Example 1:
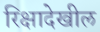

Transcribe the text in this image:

रिक्षादेखील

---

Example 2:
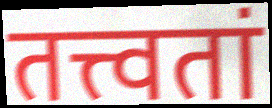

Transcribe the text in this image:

तत्त्वतां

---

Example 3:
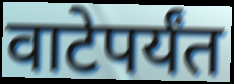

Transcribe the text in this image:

वाटेपर्यंत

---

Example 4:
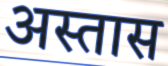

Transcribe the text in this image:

अस्तास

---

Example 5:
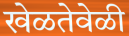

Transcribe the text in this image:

खेळतेवेळी